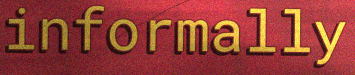
informally